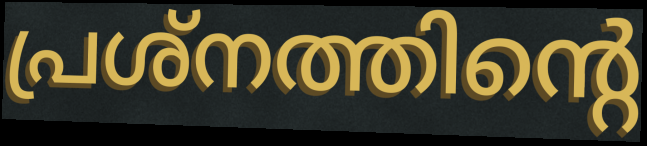
പ്രശ്നത്തിന്റെ